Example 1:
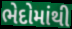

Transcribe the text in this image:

ભેદોમાંથી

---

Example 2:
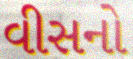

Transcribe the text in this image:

વીસનો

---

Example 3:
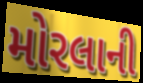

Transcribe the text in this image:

મોરલાની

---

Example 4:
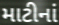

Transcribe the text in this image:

માટીનાં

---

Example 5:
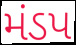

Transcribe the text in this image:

મંડપ